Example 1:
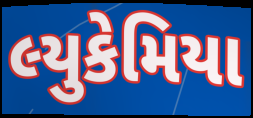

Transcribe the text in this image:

લ્યુકેમિયા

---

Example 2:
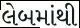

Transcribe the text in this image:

લેબમાંથી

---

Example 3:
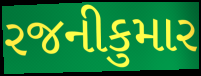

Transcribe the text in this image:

રજનીકુમાર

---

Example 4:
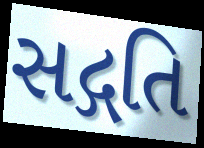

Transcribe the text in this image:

સદ્ગતિ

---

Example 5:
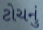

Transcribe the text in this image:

ટોચનું